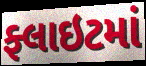
ફ્લાઇટમાં